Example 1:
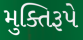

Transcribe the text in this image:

મુક્તિરૂપે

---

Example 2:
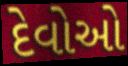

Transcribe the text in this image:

દેવોઓ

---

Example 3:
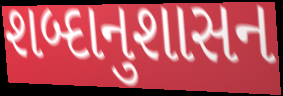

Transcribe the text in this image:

શબ્દાનુશાસન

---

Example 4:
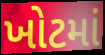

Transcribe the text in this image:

ખોટમાં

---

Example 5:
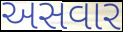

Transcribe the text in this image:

અસવાર